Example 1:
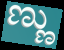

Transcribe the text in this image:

ಣ್ಣು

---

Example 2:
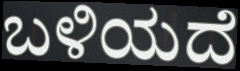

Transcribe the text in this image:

ಬಳಿಯದೆ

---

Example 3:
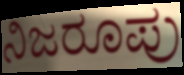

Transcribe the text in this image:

ನಿಜರೂಪು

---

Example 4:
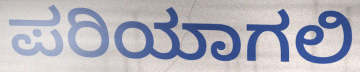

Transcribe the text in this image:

ಪರಿಯಾಗಲಿ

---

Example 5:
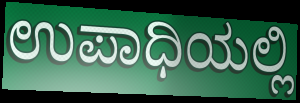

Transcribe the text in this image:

ಉಪಾಧಿಯಲ್ಲಿ